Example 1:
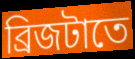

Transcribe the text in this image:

ব্রিজটাতে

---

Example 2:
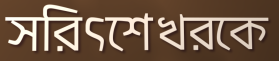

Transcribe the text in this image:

সরিৎশেখরকে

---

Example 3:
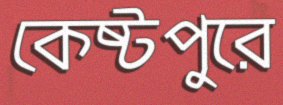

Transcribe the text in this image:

কেষ্টপুরে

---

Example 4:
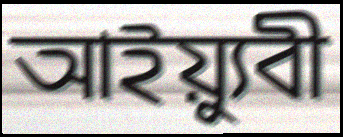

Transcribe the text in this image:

আইয়্যুবী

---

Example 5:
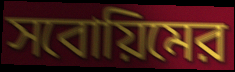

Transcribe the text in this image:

সবোয়িমের